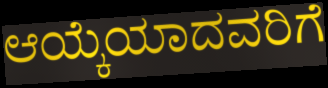
ಆಯ್ಕೆಯಾದವರಿಗೆ